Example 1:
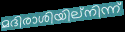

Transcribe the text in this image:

മദിരാശിയില്നിന്ന്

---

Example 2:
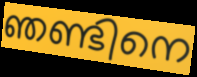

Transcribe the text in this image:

ഞണ്ടിനെ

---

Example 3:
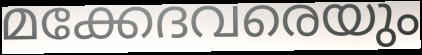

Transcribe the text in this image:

മക്കേദവരെയും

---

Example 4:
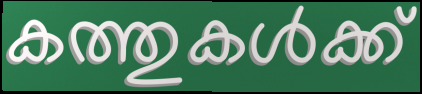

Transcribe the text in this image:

കത്തുകൾക്ക്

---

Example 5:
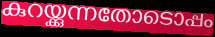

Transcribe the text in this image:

കുറയ്ക്കുന്നതോടൊപ്പം